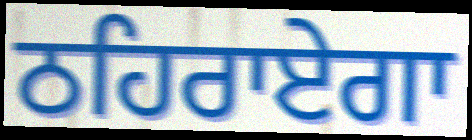
ਠਹਿਰਾਏਗਾ